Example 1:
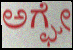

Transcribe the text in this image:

ಅಗ್ಘೇ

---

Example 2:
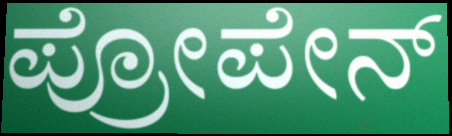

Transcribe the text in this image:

ಪ್ರೋಪೇನ್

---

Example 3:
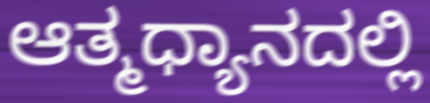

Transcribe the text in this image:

ಆತ್ಮಧ್ಯಾನದಲ್ಲಿ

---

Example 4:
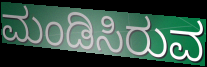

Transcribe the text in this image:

ಮಂಡಿಸಿರುವ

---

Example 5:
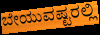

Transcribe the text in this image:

ಬೇಯುವಷ್ಟರಲ್ಲಿ